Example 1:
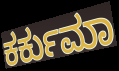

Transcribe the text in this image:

ಕರ್ಕುಮಾ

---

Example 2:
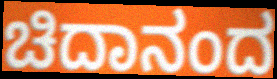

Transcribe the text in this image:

ಚಿದಾನಂದ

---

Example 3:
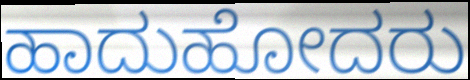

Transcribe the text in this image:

ಹಾದುಹೋದರು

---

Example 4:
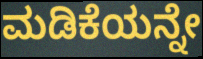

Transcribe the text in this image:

ಮಡಿಕೆಯನ್ನೇ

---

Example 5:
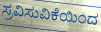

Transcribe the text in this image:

ಸ್ರವಿಸುವಿಕೆಯಿಂದ